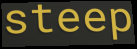
steep